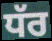
ਧੱਰ